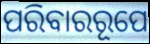
ପରିବାରରୂପେ